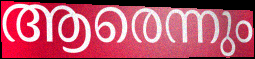
ആരെന്നും